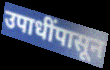
उपाधींपासून